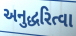
અનુદ્ધરિત્વા